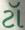
ટૉ